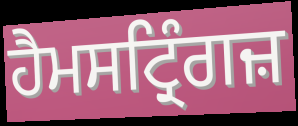
ਹੈਮਸਟ੍ਰਿੰਗਜ਼